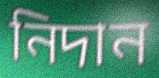
নিদান